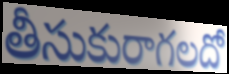
తీసుకురాగలదో